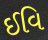
ઈવિ